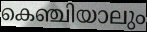
കെഞ്ചിയാലും